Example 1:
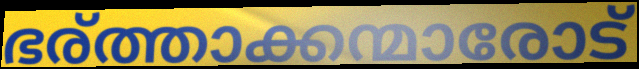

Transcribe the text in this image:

ഭര്ത്താക്കന്മാരോട്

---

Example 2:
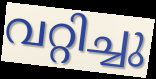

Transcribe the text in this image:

വറ്റിച്ചു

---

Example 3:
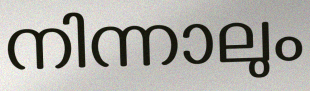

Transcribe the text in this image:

നിന്നാലും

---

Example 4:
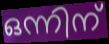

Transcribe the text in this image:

ഒന്നിന്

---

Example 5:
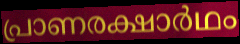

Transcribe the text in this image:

പ്രാണരക്ഷാർഥം